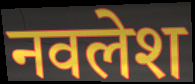
नवलेश